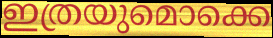
ഇത്രയുമൊക്കെ